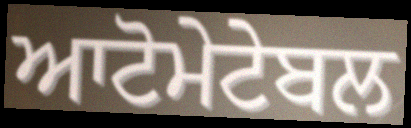
ਆਟੋਮੇਟੇਬਲ